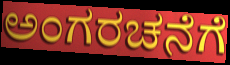
ಅಂಗರಚನೆಗೆ